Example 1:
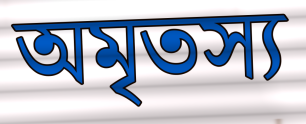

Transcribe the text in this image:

অমৃতস্য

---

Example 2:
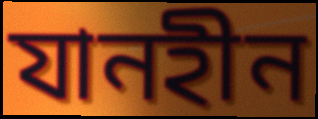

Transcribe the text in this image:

যানহীন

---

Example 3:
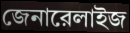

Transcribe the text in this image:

জেনারেলাইজ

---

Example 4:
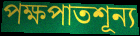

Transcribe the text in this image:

পক্ষপাতশূন্য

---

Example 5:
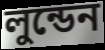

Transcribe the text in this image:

লুন্ডেন